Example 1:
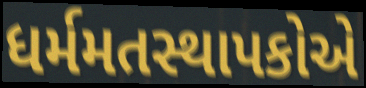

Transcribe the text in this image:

ધર્મમતસ્થાપકોએ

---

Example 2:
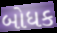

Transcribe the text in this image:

બોધક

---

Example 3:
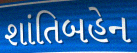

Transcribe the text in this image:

શાંતિબહેન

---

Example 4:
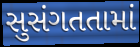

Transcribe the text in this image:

સુસંગતતામાં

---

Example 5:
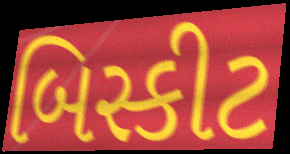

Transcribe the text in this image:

બિસ્કીટ